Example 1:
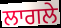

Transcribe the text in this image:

ਲਾਗਲੇ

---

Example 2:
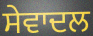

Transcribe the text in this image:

ਸੇਵਾਦਲ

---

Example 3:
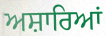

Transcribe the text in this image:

ਅਸ਼ਾਰਿਆਂ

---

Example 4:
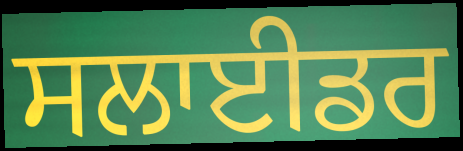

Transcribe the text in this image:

ਸਲਾਈਡਰ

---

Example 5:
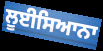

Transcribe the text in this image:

ਲੂਈਸਿਆਨਾ